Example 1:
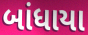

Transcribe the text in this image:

બાંધાયા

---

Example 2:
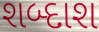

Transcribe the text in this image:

શબ્દાશ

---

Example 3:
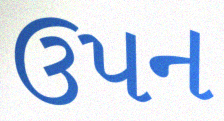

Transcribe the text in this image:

ઉપન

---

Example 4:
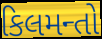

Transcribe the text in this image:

કિલમન્તો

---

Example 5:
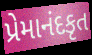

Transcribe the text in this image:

પ્રેમાનંદકૃત